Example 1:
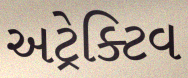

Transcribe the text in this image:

અટ્રેક્ટિવ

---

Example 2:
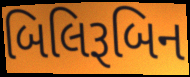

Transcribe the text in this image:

બિલિરૂબિન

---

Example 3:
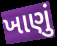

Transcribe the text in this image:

ખાણું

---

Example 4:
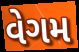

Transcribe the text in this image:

વેગમ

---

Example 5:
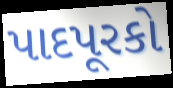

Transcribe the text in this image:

પાદપૂરકો